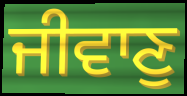
ਜੀਵਾਣੁ